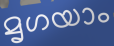
മൃഗയാം